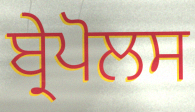
ਬ੍ਰੇਪੋਲਸ